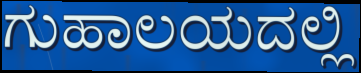
ಗುಹಾಲಯದಲ್ಲಿ